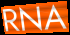
RNA